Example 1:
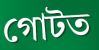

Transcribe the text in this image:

গোটত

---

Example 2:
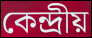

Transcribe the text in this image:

কেন্দ্ৰীয়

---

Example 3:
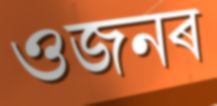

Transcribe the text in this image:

ওজনৰ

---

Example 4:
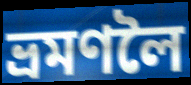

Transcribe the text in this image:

ভ্ৰমণলৈ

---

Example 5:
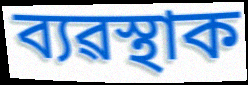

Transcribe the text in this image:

ব্যৱস্থাক